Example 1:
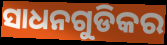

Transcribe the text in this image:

ସାଧନଗୁଡିକର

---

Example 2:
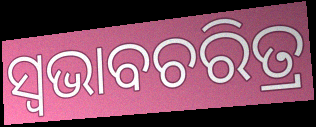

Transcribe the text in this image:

ସ୍ବଭାବଚରିତ୍ର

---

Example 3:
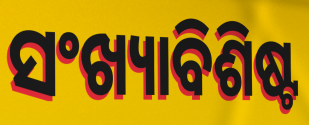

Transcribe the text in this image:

ସଂଖ୍ୟାବିଶିଷ୍ଟ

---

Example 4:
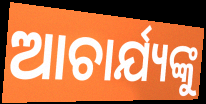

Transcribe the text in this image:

ଆଚାର୍ଯ୍ୟଙ୍କୁ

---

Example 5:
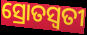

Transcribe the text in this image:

ସ୍ରୋତସ୍ଵତୀ